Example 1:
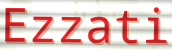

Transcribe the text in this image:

Ezzati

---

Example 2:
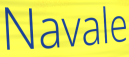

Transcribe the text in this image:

Navale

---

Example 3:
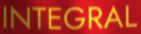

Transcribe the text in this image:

INTEGRAL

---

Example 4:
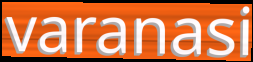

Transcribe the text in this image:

varanasi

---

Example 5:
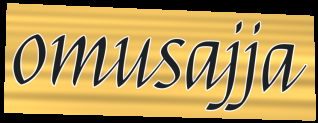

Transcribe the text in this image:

omusajja